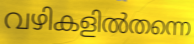
വഴികളിൽതന്നെ